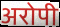
अरोपी